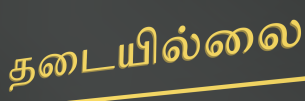
தடையில்லை